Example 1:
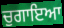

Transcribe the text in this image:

ਚੁਗਾਇਆ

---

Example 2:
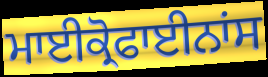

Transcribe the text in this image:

ਮਾਈਕ੍ਰੋਫਾਈਨਾਂਸ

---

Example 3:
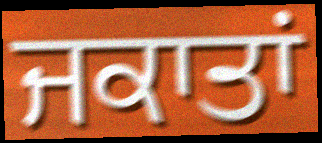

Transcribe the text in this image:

ਜਕਾਤਾਂ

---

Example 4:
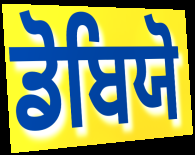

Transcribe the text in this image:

ਡੋਬਿਯੋ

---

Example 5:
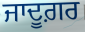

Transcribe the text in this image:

ਜਾਦੂਗ਼ਰ